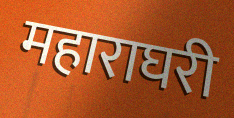
महाराघरी